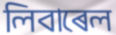
লিবাৰেল